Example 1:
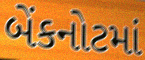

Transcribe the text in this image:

બેંકનોટમાં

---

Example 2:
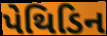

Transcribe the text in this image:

પેથિડિન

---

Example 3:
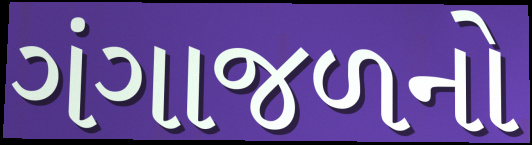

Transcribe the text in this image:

ગંગાજળનો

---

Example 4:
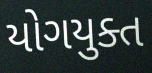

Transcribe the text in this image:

યોગયુક્ત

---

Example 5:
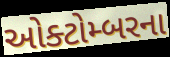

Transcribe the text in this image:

ઓક્ટોમ્બરના